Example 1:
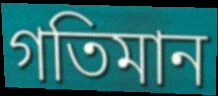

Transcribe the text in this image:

গতিমান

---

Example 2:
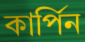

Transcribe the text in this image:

কার্পিন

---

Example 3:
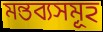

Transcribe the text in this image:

মন্তব্যসমূহ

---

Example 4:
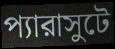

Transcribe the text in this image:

প্যারাসুটে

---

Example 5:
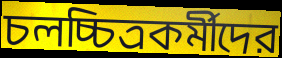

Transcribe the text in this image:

চলচ্চিত্রকর্মীদের